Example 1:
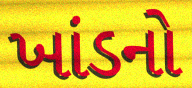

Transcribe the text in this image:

ખાંડનો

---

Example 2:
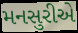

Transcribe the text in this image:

મનસુરીએ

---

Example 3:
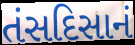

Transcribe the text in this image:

તંસદિસાનં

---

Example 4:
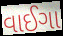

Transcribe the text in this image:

વાઈગા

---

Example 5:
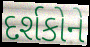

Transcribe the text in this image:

દર્શકોને